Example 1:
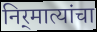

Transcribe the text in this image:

निर्मात्यांचा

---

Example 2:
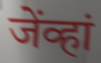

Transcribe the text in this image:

जेंव्हां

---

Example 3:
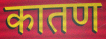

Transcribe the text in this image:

कातण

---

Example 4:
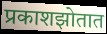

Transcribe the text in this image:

प्रकाशझोतात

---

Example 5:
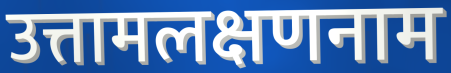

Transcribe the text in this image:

उत्तामलक्षणनाम